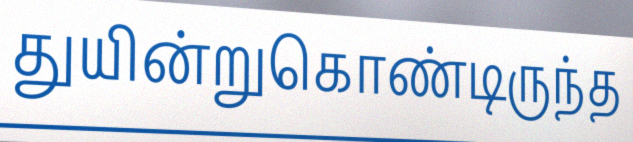
துயின்றுகொண்டிருந்த